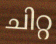
ചിറ്റ